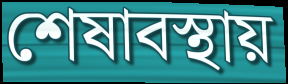
শেষাবস্থায়